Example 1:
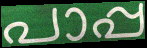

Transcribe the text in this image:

പാപ്പ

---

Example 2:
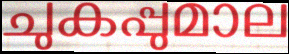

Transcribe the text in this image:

ചുകപ്പുമാല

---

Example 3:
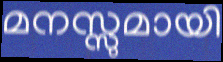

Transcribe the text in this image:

മനസ്സുമായി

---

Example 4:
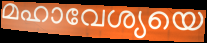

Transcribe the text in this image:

മഹാവേശ്യയെ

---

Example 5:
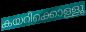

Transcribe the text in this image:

കയറിക്കൊള്ളൂ